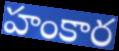
హంకార